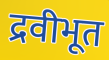
द्रवीभूत